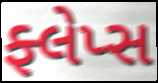
ફ્લેપ્સ